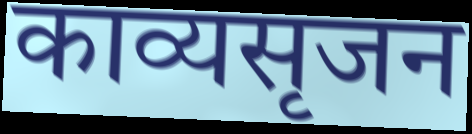
काव्यसृजन